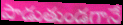
పాడుతుండగానే